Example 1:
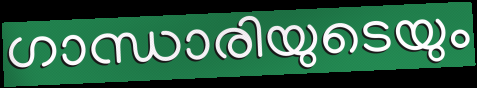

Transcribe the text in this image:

ഗാന്ധാരിയുടെയും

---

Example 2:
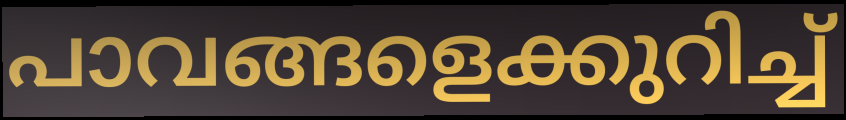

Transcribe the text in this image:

പാവങ്ങളെക്കുറിച്ച്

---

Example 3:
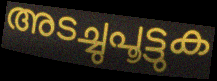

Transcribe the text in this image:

അടച്ചുപൂട്ടുക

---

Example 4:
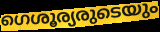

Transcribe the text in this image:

ഗെശൂര്യരുടെയും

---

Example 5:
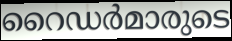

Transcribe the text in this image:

റൈഡർമാരുടെ